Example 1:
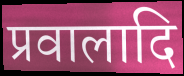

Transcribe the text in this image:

प्रवालादि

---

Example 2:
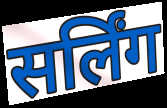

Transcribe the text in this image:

सर्लिंग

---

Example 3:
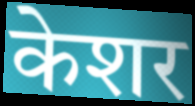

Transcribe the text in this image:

केशर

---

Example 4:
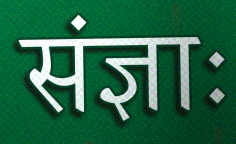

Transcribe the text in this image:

संज्ञाः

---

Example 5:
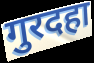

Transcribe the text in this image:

गुरदहा